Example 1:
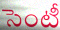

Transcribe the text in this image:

సెంటీ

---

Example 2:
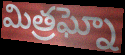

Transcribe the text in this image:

మిత్రఘ్నో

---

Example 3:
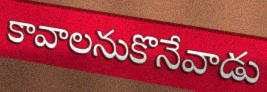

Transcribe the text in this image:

కావాలనుకొనేవాడు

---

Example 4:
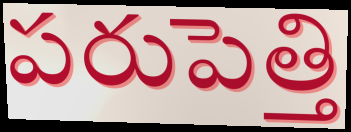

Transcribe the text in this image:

పరుపెత్తి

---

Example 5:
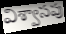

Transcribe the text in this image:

విశ్వాసపు